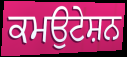
ਕਮਉਟੇਸ਼ਨ